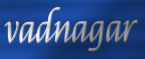
vadnagar